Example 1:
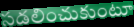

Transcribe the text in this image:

సడలించుకుంటూ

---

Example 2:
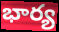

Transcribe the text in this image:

భార్య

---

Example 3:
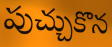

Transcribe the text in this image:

పుచ్చుకొన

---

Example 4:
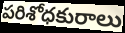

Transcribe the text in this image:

పరిశోధకురాలు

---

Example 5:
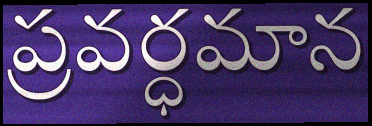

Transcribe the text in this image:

ప్రవర్ధమాన